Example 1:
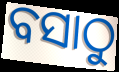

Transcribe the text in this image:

ବସାଠୁ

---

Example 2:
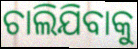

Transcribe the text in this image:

ଚାଲିଯିବାକୁ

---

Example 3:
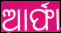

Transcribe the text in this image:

ଆର୍ଫା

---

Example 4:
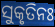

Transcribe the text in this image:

ସୁକୃତିନଃ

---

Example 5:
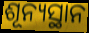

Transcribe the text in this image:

ଶୂନ୍ୟସ୍ଥାନ